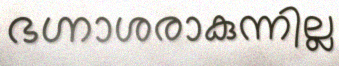
ഭഗ്നാശരാകുന്നില്ല